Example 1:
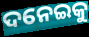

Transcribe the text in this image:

ଦନେଇକୁ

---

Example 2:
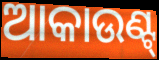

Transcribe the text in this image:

ଆକାଉଣ୍ଟ୍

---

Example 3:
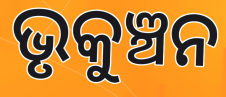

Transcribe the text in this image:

ଭୃକୁଞ୍ଚନ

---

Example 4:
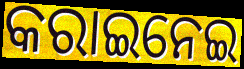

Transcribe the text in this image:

କରାଇନେଇ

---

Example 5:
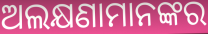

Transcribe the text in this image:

ଅଲକ୍ଷଣାମାନଙ୍କର